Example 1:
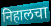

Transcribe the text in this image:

निहालचा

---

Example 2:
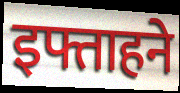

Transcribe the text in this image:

इफ्ताहने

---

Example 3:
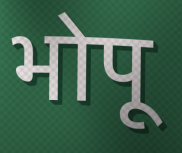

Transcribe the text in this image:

भोपू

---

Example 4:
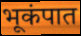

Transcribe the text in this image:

भूकंपात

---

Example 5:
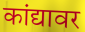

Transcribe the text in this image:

कांद्यावर